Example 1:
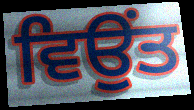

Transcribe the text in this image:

ਵਿਉਂਤ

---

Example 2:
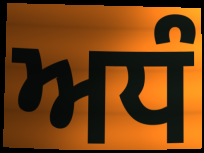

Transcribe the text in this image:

ਅਧੰ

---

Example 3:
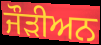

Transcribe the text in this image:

ਜੌੜੀਅਨ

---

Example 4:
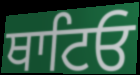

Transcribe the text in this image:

ਥਾਟਿਓ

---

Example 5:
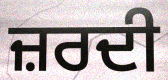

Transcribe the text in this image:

ਜ਼ਰਦੀ